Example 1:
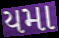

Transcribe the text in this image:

યમા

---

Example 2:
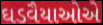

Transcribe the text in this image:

ઘડવૈયાઓએ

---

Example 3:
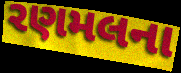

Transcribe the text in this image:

રણમલના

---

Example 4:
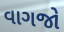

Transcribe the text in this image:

વાગજો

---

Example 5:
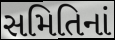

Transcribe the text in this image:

સમિતિનાં